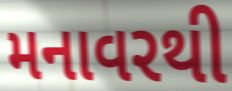
મનાવરથી